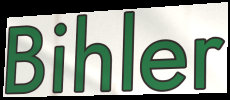
Bihler